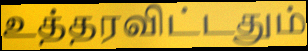
உத்தரவிட்டதும்